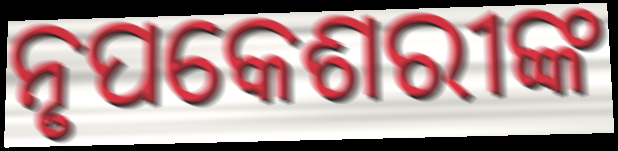
ନୃପକେଶରୀଙ୍କ